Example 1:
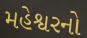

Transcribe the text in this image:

મહેશ્વરનો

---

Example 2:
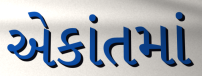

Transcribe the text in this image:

એકાંતમાં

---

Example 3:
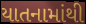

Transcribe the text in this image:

યાતનામાંથી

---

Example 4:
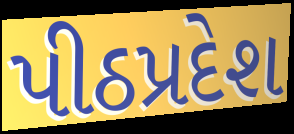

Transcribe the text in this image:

પીઠપ્રદેશ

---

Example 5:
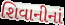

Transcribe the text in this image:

શિવાનીનાં